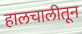
हालचालीतून